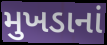
મુખડાનાં